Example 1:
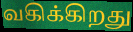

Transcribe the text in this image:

வகிக்கிறது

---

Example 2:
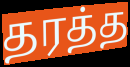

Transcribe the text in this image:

தரத்த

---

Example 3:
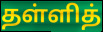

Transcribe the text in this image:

தள்ளித்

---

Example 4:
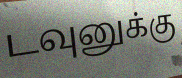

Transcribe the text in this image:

டவுனுக்கு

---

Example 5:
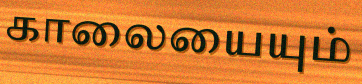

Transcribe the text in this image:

காலையையும்